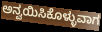
ಅನ್ವಯಿಸಿಕೊಳ್ಳುವಾಗ